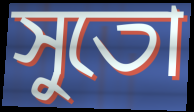
সুতো